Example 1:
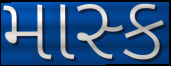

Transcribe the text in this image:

માસ્ક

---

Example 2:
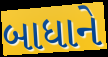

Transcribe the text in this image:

બાધાને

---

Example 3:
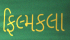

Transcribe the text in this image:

ફિલ્મકલા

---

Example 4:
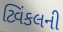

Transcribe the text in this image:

ટ્વિંકલની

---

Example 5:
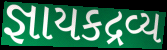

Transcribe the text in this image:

જ્ઞાયકદ્રવ્ય